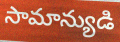
సామాన్యుడి